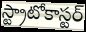
స్ట్రాటోకాస్టర్